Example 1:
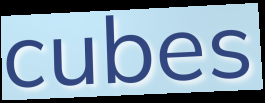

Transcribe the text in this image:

cubes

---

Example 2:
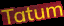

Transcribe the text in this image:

Tatum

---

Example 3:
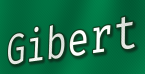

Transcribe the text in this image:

Gibert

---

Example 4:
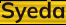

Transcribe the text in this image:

Syeda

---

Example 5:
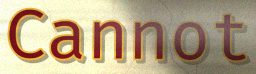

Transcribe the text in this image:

Cannot